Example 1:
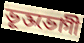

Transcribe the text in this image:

ভূক্তভোগী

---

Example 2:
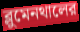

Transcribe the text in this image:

ব্লুমেনথালের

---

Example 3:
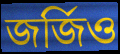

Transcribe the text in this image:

জর্জিও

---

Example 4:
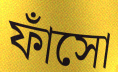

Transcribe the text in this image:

ফাঁসো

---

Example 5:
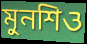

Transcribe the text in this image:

মুনশিও